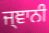
ਜ੍ਞਾਨੀ